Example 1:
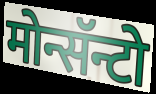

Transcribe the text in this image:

मोन्सॅन्टो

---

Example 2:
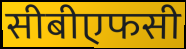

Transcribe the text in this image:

सीबीएफसी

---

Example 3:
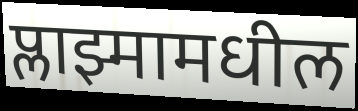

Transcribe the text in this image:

प्लाझ्मामधील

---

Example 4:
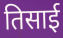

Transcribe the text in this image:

तिसाई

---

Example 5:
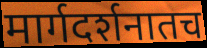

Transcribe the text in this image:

मार्गदर्शनातच